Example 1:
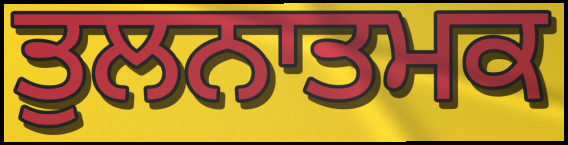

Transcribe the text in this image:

ਤੁਲਨਾਤਮਕ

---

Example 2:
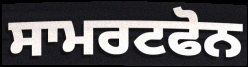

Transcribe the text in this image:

ਸਾਮਰਟਫੋਨ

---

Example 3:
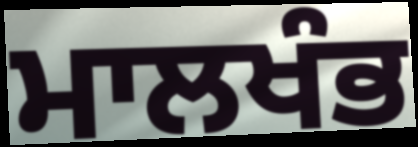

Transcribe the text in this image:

ਮਾਲਖੰਭ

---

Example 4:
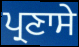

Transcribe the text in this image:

ਪ੍ਰਣਾਸੇ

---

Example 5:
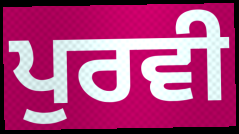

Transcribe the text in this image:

ਪੁਰਵੀ